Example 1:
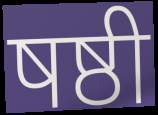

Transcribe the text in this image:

षष्ठी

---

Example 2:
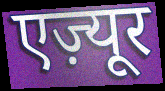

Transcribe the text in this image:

एज़्यूर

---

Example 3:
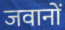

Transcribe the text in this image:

जवानों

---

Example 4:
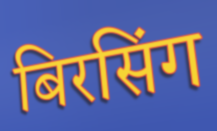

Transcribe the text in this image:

बिरसिंग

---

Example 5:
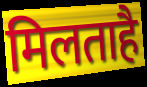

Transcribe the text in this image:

मिलताहै